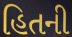
હિતની